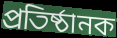
প্ৰতিষ্ঠানক